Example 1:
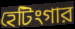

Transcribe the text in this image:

হেটিংগার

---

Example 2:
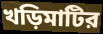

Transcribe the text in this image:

খড়িমাটির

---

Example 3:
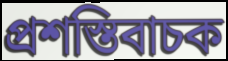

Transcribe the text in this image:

প্রশস্তিবাচক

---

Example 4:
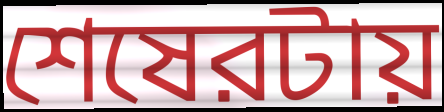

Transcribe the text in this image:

শেষেরটায়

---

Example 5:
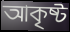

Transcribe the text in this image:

আকৃষ্ট